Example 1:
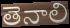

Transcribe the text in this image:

తెనాలి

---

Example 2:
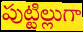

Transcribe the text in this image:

పుట్టిల్లుగా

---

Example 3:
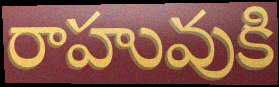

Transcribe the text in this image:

రాహువుకి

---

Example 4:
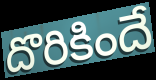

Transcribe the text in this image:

దొరికిందే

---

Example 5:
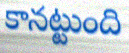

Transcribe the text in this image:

కానట్టుంది